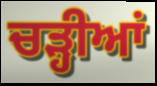
ਚੜ੍ਹੀਆਂ